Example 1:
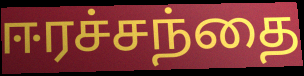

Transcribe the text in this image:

ஈரச்சந்தை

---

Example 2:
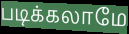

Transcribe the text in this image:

படிக்கலாமே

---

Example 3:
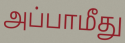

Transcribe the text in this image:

அப்பாமீது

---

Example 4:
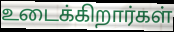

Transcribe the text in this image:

உடைக்கிறார்கள்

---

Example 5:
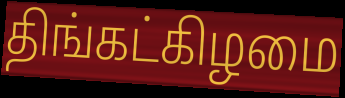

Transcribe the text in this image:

திங்கட்கிழமை